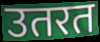
उतरत